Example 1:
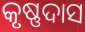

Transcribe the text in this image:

କୃଷ୍ଣଦାସ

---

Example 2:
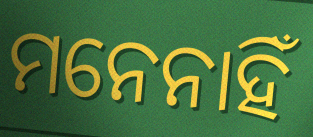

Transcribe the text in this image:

ମନେନାହିଁ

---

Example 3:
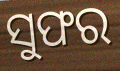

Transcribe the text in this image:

ସୁଫର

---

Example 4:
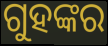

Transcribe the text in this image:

ଗୁହଙ୍କର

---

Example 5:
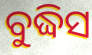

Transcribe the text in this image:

ବୁଦ୍ଧିସ